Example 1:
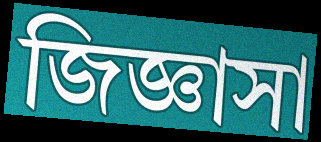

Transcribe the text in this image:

জিজ্ঞাসা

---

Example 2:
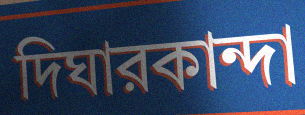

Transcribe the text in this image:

দিঘারকান্দা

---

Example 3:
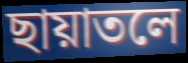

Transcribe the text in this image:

ছায়াতলে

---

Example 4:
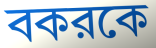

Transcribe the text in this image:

বকরকে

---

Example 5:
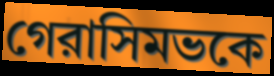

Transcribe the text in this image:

গেরাসিমভকে